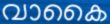
വാകൈ